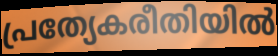
പ്രത്യേകരീതിയിൽ